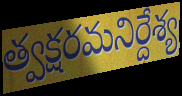
త్వక్షరమనిర్దేశ్య